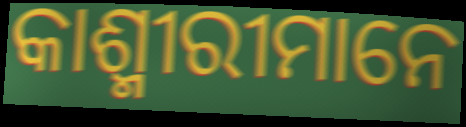
କାଶ୍ମୀରୀମାନେ